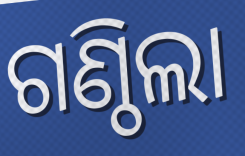
ଗଣ୍ଠିଲା